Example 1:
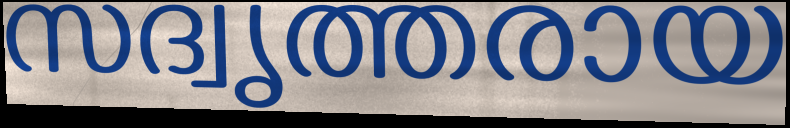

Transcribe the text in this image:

സദ്വൃത്തരായ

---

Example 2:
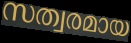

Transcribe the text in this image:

സത്വരമായ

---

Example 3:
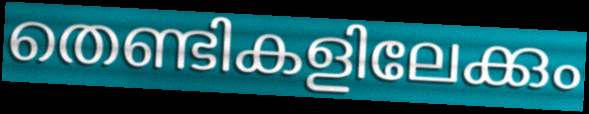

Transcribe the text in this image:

തെണ്ടികളിലേക്കും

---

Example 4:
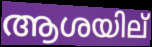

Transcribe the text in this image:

ആശയില്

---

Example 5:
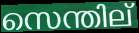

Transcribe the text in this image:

സെന്തില്